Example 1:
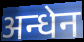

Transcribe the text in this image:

अन्धेन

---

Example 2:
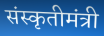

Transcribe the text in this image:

संस्कृतीमंत्री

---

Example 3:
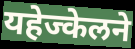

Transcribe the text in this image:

यहेज्केलने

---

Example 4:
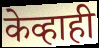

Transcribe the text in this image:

केव्हाही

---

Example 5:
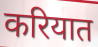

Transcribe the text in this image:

करियात